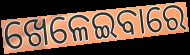
ଖେଳେଇବାରେ